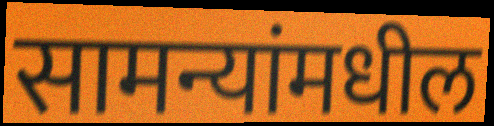
सामन्यांमधील